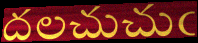
దలచుచుఁ